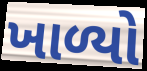
ખાળ્યો